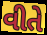
વીતે